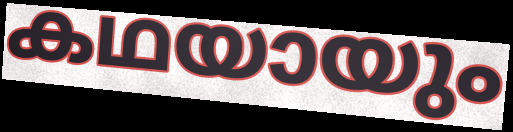
കഥയായും